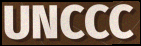
UNCCC